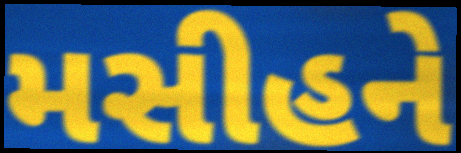
મસીહને